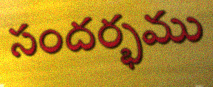
సందర్భము